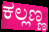
ಕಲ್ಲಣ್ಣ